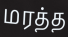
மரத்த